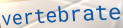
vertebrate